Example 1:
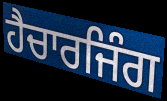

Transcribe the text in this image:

ਹੈਚਾਰਜਿੰਗ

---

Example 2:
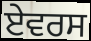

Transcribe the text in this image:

ਏਵਰਸ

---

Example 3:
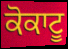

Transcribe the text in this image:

ਕੋਕਾਟੂ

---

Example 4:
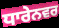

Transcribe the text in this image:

ਧਾਰੇਨਵਰ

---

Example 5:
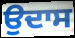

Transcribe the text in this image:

ਉਦਾਸ